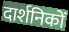
दार्शनिकों